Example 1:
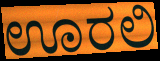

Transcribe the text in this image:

ಊರಲಿ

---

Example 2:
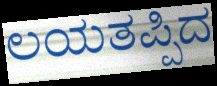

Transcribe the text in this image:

ಲಯತಪ್ಪಿದ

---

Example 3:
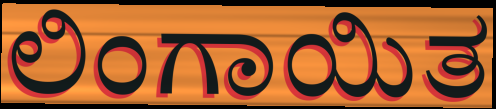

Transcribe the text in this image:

ಲಿಂಗಾಯಿತ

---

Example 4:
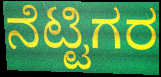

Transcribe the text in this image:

ನೆಟ್ಟಿಗರ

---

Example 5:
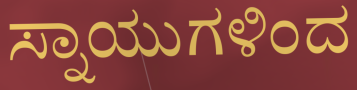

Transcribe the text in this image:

ಸ್ನಾಯುಗಳಿಂದ